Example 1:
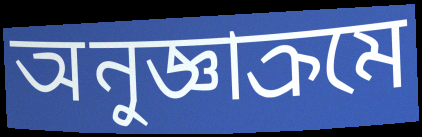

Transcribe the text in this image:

অনুজ্ঞাক্রমে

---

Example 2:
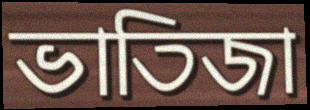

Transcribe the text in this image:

ভাতিজা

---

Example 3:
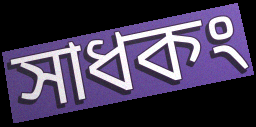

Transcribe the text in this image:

সাধকং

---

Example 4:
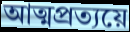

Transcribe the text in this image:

আত্মপ্রত্যয়ে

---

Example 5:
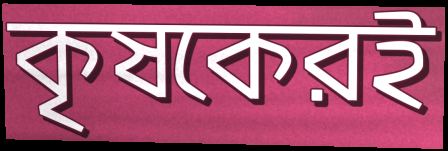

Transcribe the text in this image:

কৃষকেরই